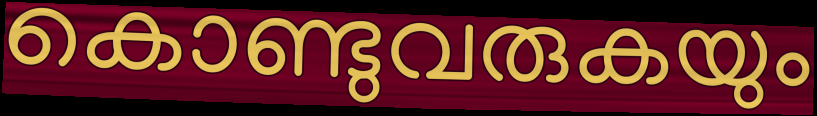
കൊണ്ടുവരുകയും